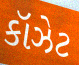
કૉઝેટ